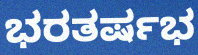
ಭರತರ್ಷಭ